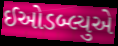
ઈઓડબ્લ્યુએ